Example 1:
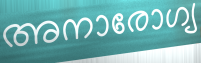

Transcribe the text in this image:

അനാരോഗ്യ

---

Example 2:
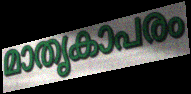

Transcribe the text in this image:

മാതൃകാപരം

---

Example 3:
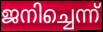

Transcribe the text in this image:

ജനിച്ചെന്ന്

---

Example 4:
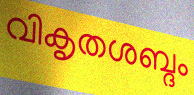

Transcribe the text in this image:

വികൃതശബ്ദം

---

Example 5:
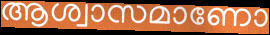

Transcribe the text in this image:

ആശ്വാസമാണോ